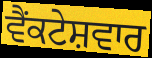
ਵੈਂਕਟੇਸ਼ਵਾਰ